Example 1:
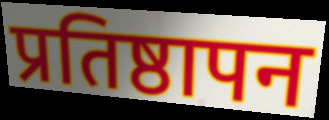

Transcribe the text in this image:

प्रतिष्ठापन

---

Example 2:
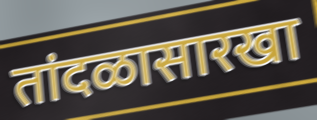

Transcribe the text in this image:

तांदळासारखा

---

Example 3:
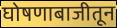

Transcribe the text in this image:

घोषणाबाजीतून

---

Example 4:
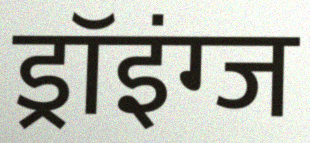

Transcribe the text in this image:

ड्रॉइंग्ज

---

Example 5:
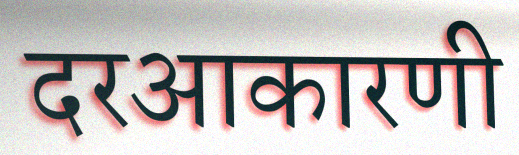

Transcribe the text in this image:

दरआकारणी